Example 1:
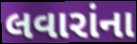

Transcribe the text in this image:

લવારાંના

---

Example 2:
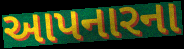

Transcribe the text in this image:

આપનારના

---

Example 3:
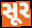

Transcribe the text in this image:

સૂર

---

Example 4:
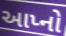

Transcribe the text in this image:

આપ્નો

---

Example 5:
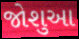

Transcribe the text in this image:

જોશુઆ